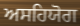
ਅਸਹਿਯੋਗ